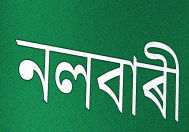
নলবাৰী